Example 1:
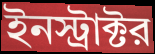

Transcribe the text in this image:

ইনস্ট্রাক্টর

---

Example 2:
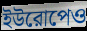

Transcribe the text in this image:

ইউরোপেও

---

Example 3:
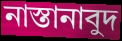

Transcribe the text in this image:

নাস্তানাবুদ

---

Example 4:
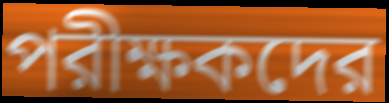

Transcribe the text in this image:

পরীক্ষকদের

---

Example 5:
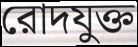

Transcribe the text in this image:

রোদযুক্ত